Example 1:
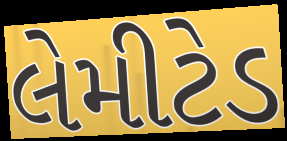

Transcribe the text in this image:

લેમીટેડ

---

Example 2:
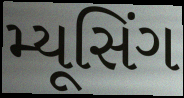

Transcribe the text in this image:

મ્યૂસિંગ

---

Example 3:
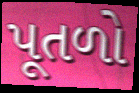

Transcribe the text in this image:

પૂતળો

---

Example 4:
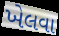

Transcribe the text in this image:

ખેલવા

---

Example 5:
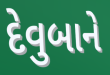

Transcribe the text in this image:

દેવુબાને